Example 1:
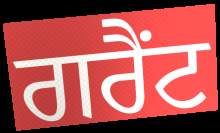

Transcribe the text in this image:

ਗਰੈਂਟ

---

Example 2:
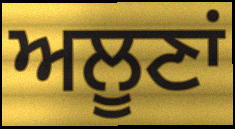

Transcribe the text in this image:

ਅਲੂਣਾਂ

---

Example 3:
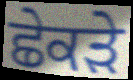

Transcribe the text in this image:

ਛੇਕੜੇ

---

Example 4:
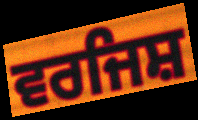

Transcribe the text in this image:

ਵਰਜਿਸ਼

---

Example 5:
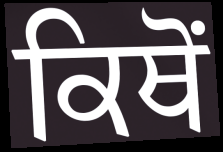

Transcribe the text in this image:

ਕਿਥੋਂ